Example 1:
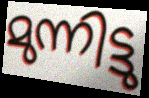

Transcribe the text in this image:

മുന്നിട്ടു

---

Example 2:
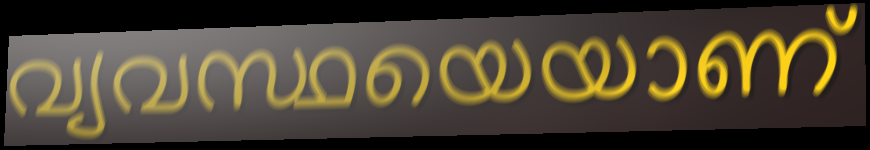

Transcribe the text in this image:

വ്യവസ്ഥയെയാണ്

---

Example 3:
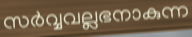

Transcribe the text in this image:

സർവ്വവല്ലഭനാകുന്ന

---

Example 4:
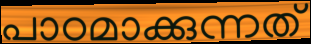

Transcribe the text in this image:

പാഠമാക്കുന്നത്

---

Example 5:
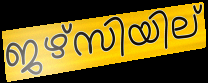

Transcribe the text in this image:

ജഴ്സിയില്